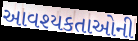
આવશ્યકતાઓની